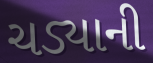
ચડ્યાની